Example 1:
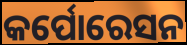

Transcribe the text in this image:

କର୍ପୋରେସନ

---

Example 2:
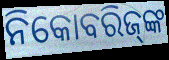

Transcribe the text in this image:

ନିକୋବରିଜ୍‍ଙ୍କ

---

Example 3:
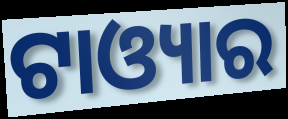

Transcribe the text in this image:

ଟାଓ୍ୟାର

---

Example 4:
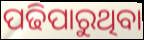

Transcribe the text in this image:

ପଢିପାରୁଥିବା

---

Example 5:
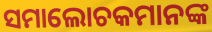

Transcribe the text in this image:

ସମାଲୋଚକମାନଙ୍କ